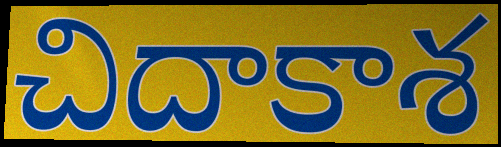
చిదాకాశ